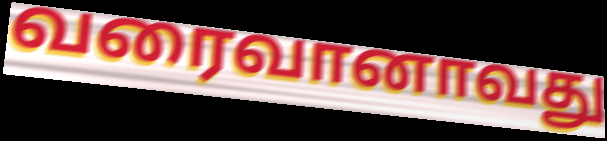
வரைவானாவது